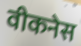
वीकनेस